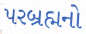
પરબ્રહ્મનો